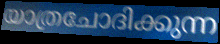
യാത്രചോദിക്കുന്ന